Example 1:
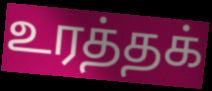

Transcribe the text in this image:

உரத்தக்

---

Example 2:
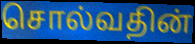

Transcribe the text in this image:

சொல்வதின்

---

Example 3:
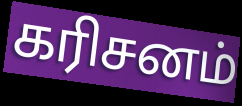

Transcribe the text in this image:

கரிசனம்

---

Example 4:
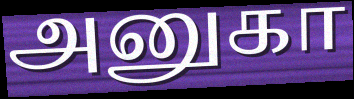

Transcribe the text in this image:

அனுகா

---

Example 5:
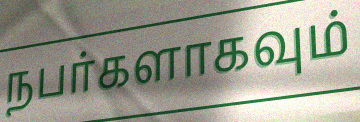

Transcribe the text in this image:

நபர்களாகவும்